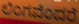
ಲಿಂಗವೆಂದರೆ